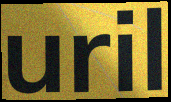
uril